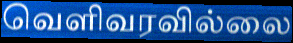
வெளிவரவில்லை